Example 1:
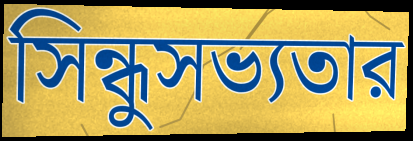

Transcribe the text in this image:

সিন্ধুসভ্যতার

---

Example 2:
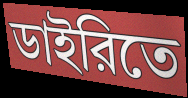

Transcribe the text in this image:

ডাইরিতে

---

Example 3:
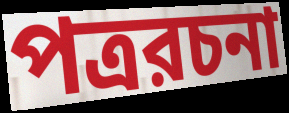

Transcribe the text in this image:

পত্ররচনা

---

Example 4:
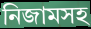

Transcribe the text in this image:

নিজামসহ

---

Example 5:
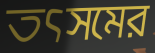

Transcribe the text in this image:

তৎসমের